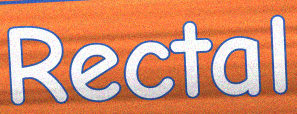
Rectal